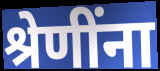
श्रेणींना